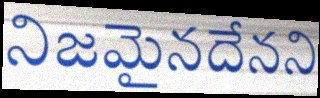
నిజమైనదేనని